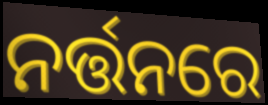
ନର୍ତ୍ତନରେ